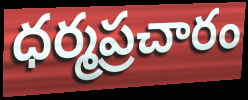
ధర్మప్రచారం